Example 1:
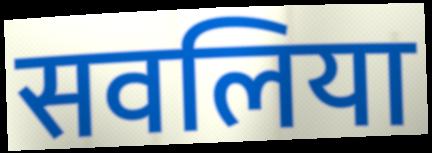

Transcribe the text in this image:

सवलिया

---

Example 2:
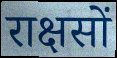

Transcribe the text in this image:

राक्षसों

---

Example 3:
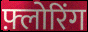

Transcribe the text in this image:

फ़्लोरिंग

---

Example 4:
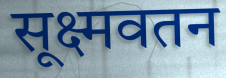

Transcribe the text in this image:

सूक्ष्मवतन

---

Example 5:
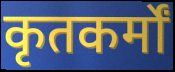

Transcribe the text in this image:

कृतकर्मों